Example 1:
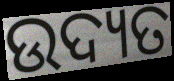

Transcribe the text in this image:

ଉଦ୍ୟତ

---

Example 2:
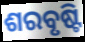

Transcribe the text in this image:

ଶରବୃଷ୍ଟି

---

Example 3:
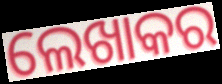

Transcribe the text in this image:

ଲେଖାକର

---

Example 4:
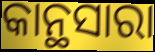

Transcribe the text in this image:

କାନ୍ଥସାରା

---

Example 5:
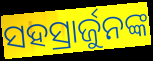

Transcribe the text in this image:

ସହସ୍ରାର୍ଜୁନଙ୍କ